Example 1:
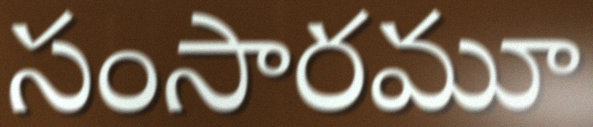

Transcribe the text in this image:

సంసారమూ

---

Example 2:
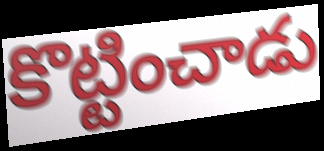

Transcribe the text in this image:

కొట్టించాడు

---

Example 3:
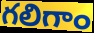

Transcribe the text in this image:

గలిగాం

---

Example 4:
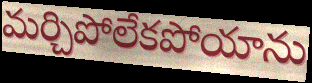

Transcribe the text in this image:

మర్చిపోలేకపోయాను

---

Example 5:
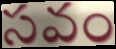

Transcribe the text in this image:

సవం